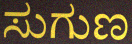
ಸುಗುಣ